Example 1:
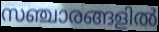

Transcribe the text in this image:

സഞ്ചാരങ്ങളിൽ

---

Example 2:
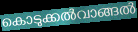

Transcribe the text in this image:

കൊടുക്കൽവാങ്ങൽ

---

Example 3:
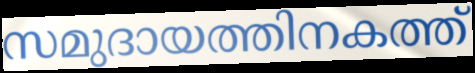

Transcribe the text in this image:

സമുദായത്തിനകത്ത്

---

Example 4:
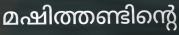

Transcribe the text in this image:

മഷിത്തണ്ടിന്റെ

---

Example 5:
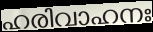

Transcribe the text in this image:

ഹരിവാഹനഃ